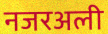
नजरअली